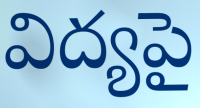
విద్యపై